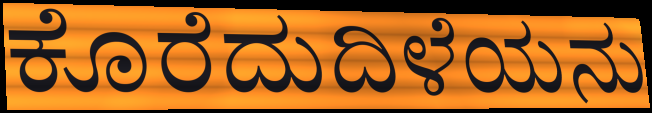
ಕೊರೆದುದಿಳೆಯನು